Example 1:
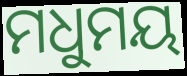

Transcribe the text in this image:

ମଧୁମୟ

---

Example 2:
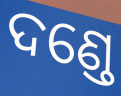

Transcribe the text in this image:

ଦଣ୍ଡେ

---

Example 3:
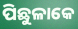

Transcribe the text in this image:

ପିଛୁଳାକେ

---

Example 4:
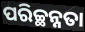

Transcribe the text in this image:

ପରିଚ୍ଛନ୍ନତା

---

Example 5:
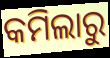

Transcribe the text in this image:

କମିଲାରୁ